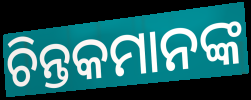
ଚିନ୍ତକମାନଙ୍କ